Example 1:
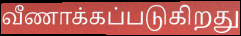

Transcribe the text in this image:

வீணாக்கப்படுகிறது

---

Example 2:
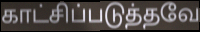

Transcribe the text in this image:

காட்சிப்படுத்தவே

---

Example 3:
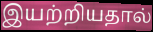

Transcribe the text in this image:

இயற்றியதால்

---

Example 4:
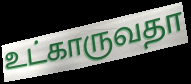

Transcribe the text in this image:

உட்காருவதா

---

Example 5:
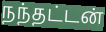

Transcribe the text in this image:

நந்தட்டன்